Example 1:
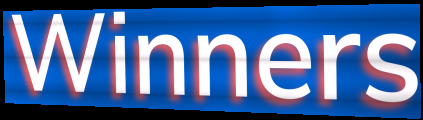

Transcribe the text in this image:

Winners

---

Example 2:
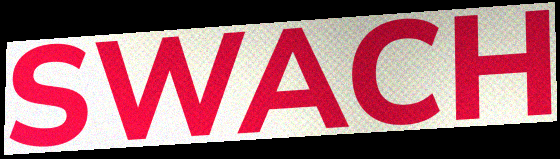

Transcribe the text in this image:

SWACH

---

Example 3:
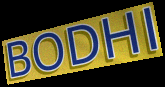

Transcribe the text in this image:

BODHI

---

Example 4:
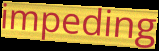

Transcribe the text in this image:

impeding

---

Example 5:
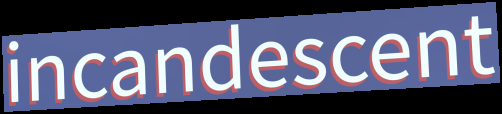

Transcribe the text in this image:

incandescent